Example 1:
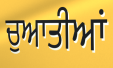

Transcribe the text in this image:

ਚੁਆਤੀਆਂ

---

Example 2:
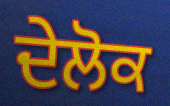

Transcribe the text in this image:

ਦੇਲੋਕ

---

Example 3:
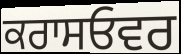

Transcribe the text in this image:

ਕਰਾਸਓਵਰ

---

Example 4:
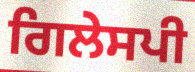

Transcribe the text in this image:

ਗਿਲੇਸਪੀ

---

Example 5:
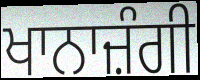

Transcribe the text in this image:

ਖਾਨਾਜ਼ੰਗੀ